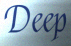
Deep